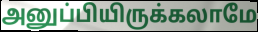
அனுப்பியிருக்கலாமே